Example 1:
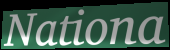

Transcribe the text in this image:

Nationa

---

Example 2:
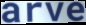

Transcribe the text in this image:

arve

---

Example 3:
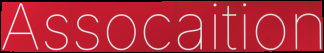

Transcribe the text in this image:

Assocaition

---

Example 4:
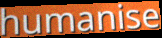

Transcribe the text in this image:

humanise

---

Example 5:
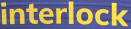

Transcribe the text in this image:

interlock